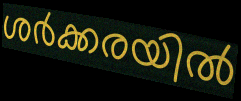
ശർക്കരയിൽ